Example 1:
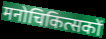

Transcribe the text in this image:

मनोचिकित्सकों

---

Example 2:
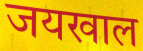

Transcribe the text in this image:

जयखाल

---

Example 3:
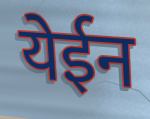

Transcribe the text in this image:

येईन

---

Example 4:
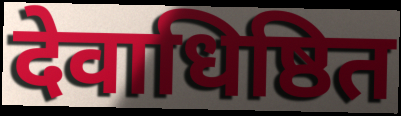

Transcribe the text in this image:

देवाधिष्ठित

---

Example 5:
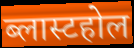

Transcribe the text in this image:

ब्लास्टहोल